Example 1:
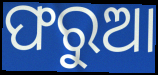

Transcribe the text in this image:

ଫରୁଆ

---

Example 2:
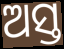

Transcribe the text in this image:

ଅସ୍ତ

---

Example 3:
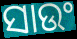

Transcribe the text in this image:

ସାଉଂ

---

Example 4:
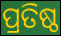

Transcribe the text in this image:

ପ୍ରତିଷ୍ଠ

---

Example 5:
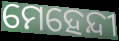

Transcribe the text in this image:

ମେହେନ୍ଦୀ